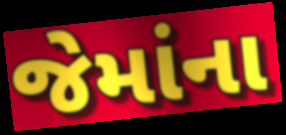
જેમાંના